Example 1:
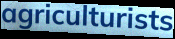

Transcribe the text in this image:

agriculturists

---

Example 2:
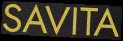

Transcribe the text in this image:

SAVITA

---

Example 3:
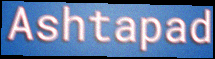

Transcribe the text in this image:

Ashtapad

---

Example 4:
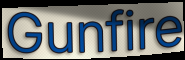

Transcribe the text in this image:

Gunfire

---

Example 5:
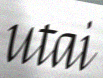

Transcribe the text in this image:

utai